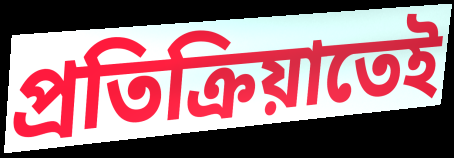
প্রতিক্রিয়াতেই